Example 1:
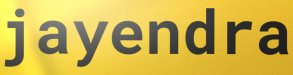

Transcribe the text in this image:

jayendra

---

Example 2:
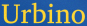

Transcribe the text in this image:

Urbino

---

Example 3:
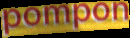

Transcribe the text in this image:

pompon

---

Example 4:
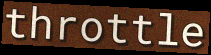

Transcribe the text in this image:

throttle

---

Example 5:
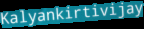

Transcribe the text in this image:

Kalyankirtivijay